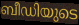
ബീഡിയുടെ